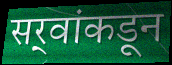
सर्वांकडून